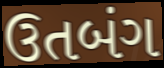
ઉતબંગ